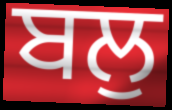
ਬਲੁ